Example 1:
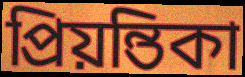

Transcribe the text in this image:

প্রিয়ন্তিকা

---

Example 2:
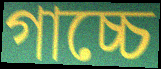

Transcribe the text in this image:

গাচ্চে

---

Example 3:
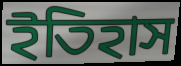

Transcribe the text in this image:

ইতিহাস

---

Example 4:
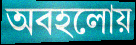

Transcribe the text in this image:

অবহলোয়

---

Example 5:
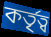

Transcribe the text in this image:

কর্তৃত্ব